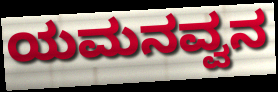
ಯಮನವ್ವನ